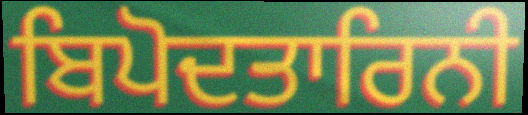
ਬਿਪੋਦਤਾਰਿਨੀ